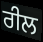
ਰੀਲ